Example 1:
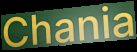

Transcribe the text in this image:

Chania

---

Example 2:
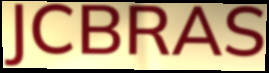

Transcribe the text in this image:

JCBRAS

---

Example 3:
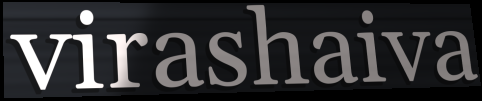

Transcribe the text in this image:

virashaiva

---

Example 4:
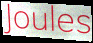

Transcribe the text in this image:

Joules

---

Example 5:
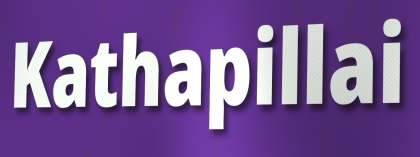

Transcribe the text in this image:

Kathapillai